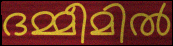
ദമ്മീമിൽ